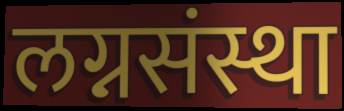
लग्नसंस्था